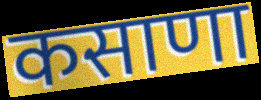
कसाणा